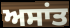
ਅਸਾਂਤ